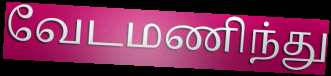
வேடமணிந்து